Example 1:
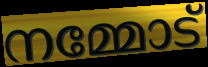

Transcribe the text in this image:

നമ്മോട്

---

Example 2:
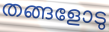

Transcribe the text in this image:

തങ്ങളോടു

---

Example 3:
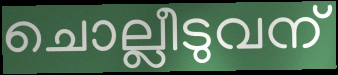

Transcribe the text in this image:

ചൊല്ലീടുവന്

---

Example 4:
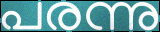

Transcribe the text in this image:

പരന്നു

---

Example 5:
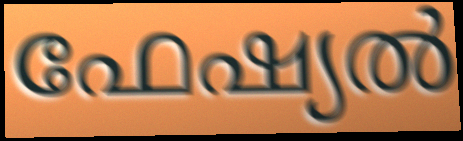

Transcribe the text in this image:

ഫേഷ്യൽ